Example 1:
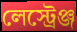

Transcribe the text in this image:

লেস্ট্রেঞ্জ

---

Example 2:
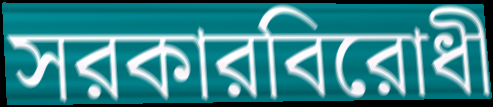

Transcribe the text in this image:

সরকারবিরোধী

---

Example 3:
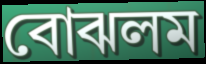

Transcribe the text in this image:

বোঝলম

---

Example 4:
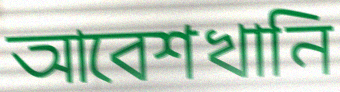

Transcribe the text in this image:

আবেশখানি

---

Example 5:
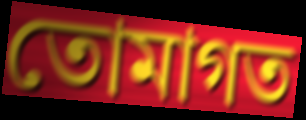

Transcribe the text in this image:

তোমাগত